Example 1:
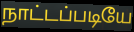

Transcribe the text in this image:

நாட்டப்படியே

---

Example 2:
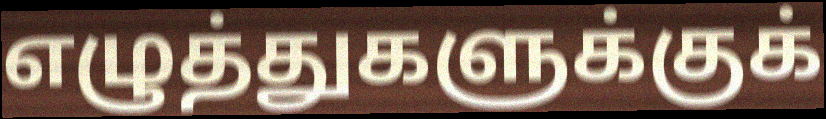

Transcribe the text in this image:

எழுத்துகளுக்குக்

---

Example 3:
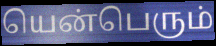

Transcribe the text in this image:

யென்பெரும்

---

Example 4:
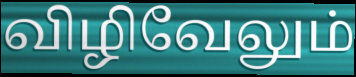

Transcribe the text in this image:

விழிவேலும்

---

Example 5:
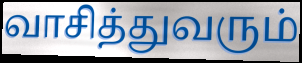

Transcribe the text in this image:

வாசித்துவரும்